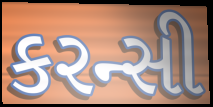
કરન્સી